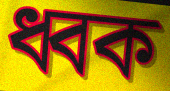
ধ্বক